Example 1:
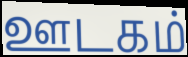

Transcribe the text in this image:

ஊடகம்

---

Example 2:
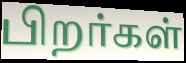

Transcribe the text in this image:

பிறர்கள்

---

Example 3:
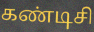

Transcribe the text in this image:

கண்டிசி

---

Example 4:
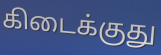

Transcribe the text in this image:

கிடைக்குது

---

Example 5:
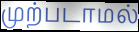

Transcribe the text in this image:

முற்படாமல்